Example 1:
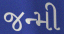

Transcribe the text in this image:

જન્મી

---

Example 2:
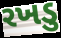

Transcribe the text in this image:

રખડુ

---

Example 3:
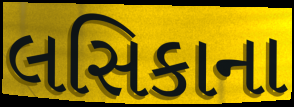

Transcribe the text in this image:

લસિકાના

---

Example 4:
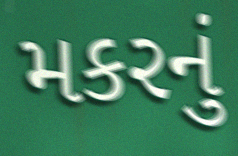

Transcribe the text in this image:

મકરનું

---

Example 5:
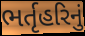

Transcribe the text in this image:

ભર્તૃહરિનું